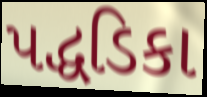
પદ્ધડિકા